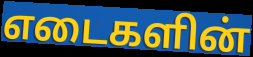
எடைகளின்